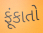
ફૂંકાતો